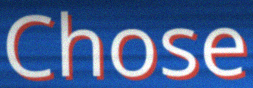
Chose